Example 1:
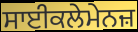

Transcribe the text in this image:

ਸਾਈਕਲੇਮੇਨਜ਼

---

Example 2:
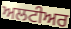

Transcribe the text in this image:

ਅਲਟੀਅਰ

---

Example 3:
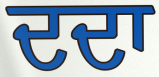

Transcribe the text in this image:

ਦਦਾ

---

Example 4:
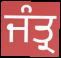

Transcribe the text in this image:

ਜੰਤ੍ਰ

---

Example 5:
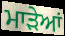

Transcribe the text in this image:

ਮਾੜੇਆਂ